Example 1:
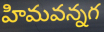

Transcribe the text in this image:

హిమవన్నగ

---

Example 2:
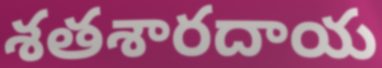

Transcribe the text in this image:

శతశారదాయ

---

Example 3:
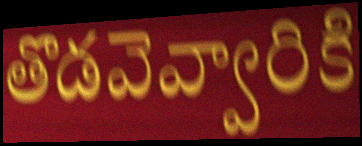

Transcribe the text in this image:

తొడవెవ్వారికి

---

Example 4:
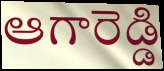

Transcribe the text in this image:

ఆగారెడ్డి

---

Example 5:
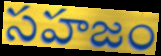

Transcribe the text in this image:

సహజం